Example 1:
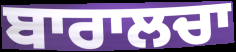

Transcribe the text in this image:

ਬਾਰਾਲਚਾ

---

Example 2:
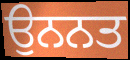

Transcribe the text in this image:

ਉਨਨਤ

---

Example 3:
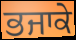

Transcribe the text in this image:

ਭਜਾਕੇ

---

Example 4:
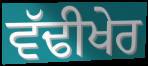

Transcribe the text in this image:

ਵੱਢੀਖੇਰ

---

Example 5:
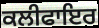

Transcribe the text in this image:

ਕਲੀਫਾਇਰ